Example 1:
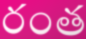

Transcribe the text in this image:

రంత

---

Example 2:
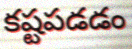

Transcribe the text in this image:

కష్టపడడం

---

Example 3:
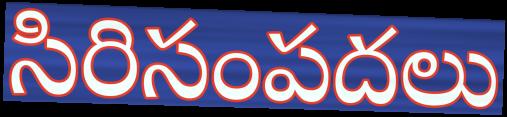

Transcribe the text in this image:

సిరిసంపదలు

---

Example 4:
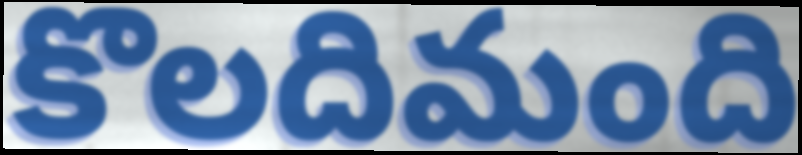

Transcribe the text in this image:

కొలదిమంది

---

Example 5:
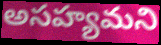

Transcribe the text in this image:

అసహ్యమని